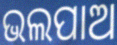
ଭଲପାଅ